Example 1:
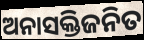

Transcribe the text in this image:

ଅନାସକ୍ତିଜନିତ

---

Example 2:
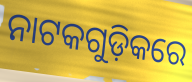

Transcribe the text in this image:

ନାଟକଗୁଡ଼ିକରେ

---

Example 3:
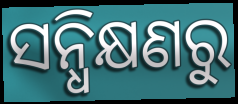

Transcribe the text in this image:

ସନ୍ଧିକ୍ଷଣରୁ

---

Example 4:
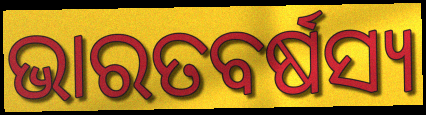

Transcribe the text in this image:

ଭାରତବର୍ଷସ୍ୟ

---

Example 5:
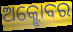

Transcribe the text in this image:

ଅକ୍ଝୋବର